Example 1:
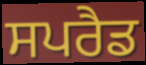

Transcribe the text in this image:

ਸਪਰੈਡ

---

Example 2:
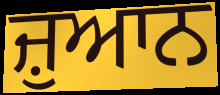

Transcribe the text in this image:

ਜ਼ੁਆਨ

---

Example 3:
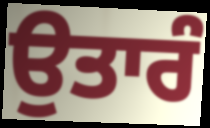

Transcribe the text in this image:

ਉਤਾਰੰ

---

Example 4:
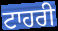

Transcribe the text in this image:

ਟਾਹਰੀ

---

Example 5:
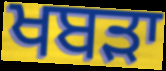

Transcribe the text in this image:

ਖਬੜਾ